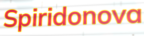
Spiridonova